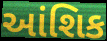
આંશિક